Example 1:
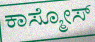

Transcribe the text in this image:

ಕಾಸ್ಮೋಸ್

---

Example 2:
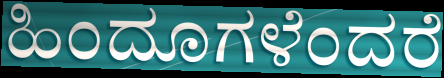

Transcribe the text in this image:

ಹಿಂದೂಗಳೆಂದರೆ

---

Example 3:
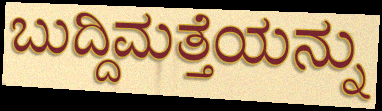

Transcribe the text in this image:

ಬುದ್ದಿಮತ್ತೆಯನ್ನು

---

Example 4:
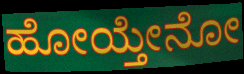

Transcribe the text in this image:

ಹೋಯ್ತೇನೋ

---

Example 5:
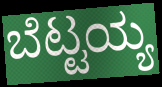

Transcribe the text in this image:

ಬೆಟ್ಟಯ್ಯ